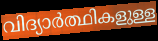
വിദ്യാർത്ഥികളുള്ള